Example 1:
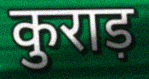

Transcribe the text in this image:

कुराड़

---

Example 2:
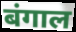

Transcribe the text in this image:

बंगाल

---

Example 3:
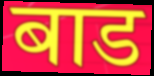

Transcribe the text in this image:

बाड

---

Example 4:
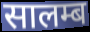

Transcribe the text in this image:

सालम्ब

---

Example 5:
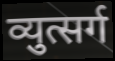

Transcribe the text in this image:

व्युत्सर्ग